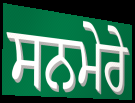
ਸਨਮੇਰੇ